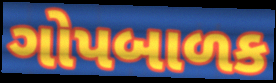
ગોપબાળક